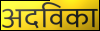
अदविका